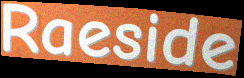
Raeside